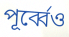
পূর্ব্বেও